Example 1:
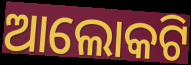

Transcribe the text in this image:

ଆଲୋକଟି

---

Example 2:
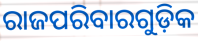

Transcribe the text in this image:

ରାଜପରିବାରଗୁଡ଼ିକ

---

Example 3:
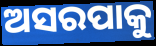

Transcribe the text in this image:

ଅସରପାକୁ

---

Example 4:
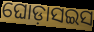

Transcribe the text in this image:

ଘୋଡ଼ାସଇସ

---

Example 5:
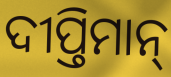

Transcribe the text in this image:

ଦୀପ୍ତିମାନ୍